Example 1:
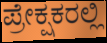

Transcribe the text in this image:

ಪ್ರೇಕ್ಷಕರಲ್ಲಿ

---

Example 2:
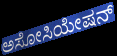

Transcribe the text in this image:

ಅಸೋಸಿಯೇಷನ್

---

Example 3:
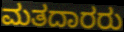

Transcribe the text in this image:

ಮತದಾರರು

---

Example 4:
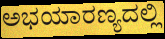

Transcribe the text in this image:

ಅಭಯಾರಣ್ಯದಲ್ಲಿ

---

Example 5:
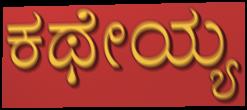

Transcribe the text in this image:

ಕಥೇಯ್ಯ